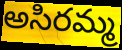
అసిరమ్మ